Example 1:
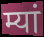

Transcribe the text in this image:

म्यां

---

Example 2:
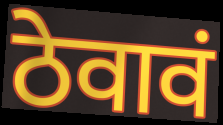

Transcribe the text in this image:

ठेवावं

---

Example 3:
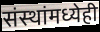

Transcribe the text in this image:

संस्थांमध्येही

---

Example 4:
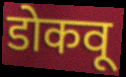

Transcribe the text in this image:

डोकवू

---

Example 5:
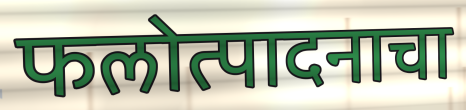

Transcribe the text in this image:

फलोत्पादनाचा